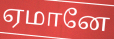
ஏமானே